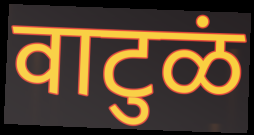
वाटुळं